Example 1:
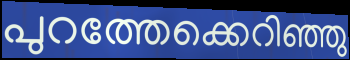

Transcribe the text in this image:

പുറത്തേക്കെറിഞ്ഞു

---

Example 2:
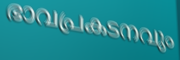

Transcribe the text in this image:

ഭാവപ്രകടനവും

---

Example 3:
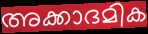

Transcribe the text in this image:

അക്കാദമിക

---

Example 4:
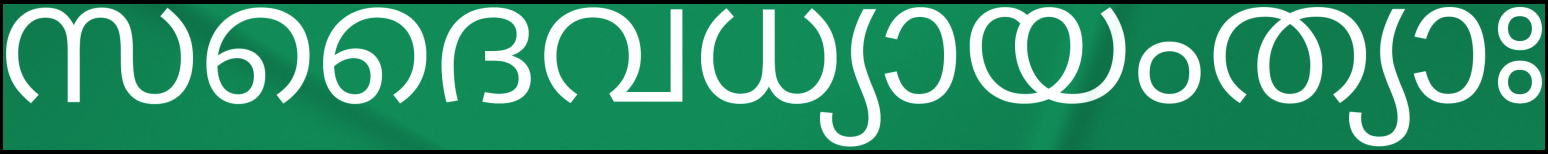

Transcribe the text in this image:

സദൈവധ്യായംത്യാഃ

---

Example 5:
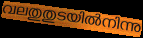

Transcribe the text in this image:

വലതുതുടയിൽനിന്നു